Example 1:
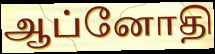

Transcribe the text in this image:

ஆப்னோதி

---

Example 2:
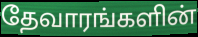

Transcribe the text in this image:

தேவாரங்களின்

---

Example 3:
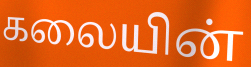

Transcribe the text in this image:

கலையின்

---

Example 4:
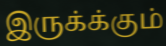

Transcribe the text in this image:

இருக்க்கும்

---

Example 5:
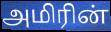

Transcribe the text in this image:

அமிரின்